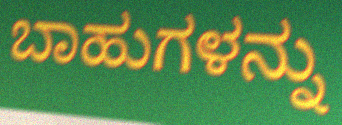
ಬಾಹುಗಳನ್ನು